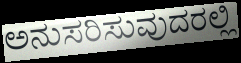
ಅನುಸರಿಸುವುದರಲ್ಲಿ